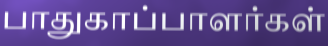
பாதுகாப்பாளர்கள்